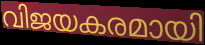
വിജയകരമായി